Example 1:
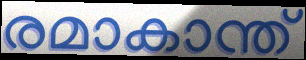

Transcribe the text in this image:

രമാകാന്ത്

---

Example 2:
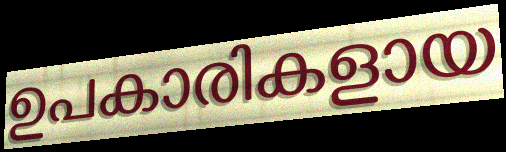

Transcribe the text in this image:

ഉപകാരികളായ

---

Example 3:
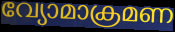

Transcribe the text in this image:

വ്യോമാക്രമണ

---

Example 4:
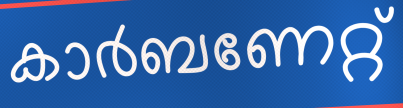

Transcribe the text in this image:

കാർബണേറ്റ്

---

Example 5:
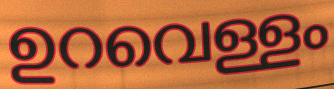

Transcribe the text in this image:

ഉറവെള്ളം